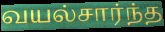
வயல்சார்ந்த